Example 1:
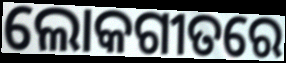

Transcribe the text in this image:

ଲୋକଗୀତରେ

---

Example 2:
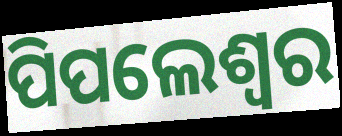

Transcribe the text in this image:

ପିପଲେଶ୍ୱର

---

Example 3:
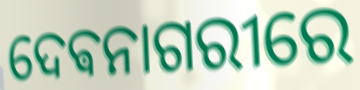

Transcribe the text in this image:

ଦେଵନାଗରୀରେ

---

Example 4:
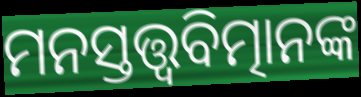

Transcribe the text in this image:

ମନସ୍ତତ୍ତ୍ବବିତ୍ମାନଙ୍କ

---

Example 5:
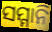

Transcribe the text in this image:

ସମ୍ମାନି